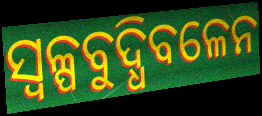
ସ୍ଵଳ୍ପବୁଦ୍ଧିବଳେନ